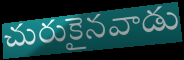
చురుకైనవాడు